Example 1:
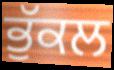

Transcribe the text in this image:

ਭੁੱਕਲ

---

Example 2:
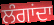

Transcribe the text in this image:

ਲੰਗਾਂਦਾ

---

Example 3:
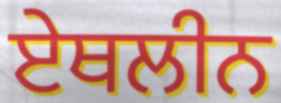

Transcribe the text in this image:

ਏਥਲੀਨ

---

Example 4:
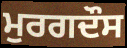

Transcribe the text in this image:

ਮੁਰਗਦੌਸ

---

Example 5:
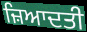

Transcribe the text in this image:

ਜ਼ਿਆਦਤੀ